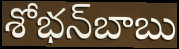
శోభన్‌బాబు